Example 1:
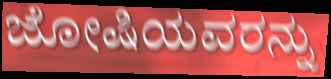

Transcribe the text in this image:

ಜೋಷಿಯವರನ್ನು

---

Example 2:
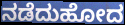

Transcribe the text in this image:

ನಡೆದುಹೋದ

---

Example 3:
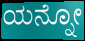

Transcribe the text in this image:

ಯನ್ನೋ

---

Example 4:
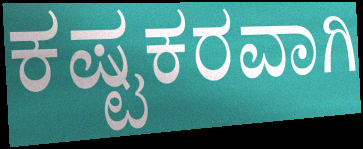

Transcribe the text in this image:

ಕಷ್ಟಕರವಾಗಿ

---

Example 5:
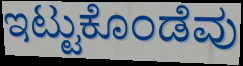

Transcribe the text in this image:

ಇಟ್ಟುಕೊಂಡೆವು